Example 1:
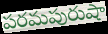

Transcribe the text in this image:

పరమపురుషా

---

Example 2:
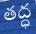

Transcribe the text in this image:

తద్ధ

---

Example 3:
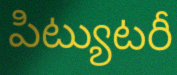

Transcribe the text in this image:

పిట్యుటరీ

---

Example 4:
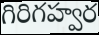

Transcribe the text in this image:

గిరిగహ్వర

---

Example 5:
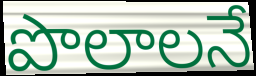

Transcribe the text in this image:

పొలాలనే